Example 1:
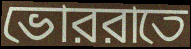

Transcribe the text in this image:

ভোররাতে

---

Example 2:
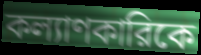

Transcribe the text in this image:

কল্যাণকারিকে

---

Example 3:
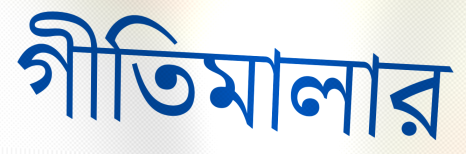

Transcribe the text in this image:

গীতিমালার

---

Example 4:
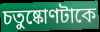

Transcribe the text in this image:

চতুষ্কোণটাকে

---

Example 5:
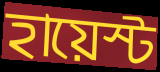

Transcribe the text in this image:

হায়েস্ট